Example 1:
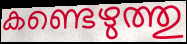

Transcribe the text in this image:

കണ്ടെഴുത്തു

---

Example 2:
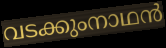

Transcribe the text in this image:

വടക്കുംനാഥൻ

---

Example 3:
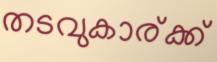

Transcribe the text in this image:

തടവുകാര്ക്ക്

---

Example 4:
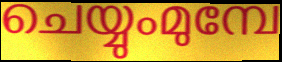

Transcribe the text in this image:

ചെയ്യുംമുമ്പേ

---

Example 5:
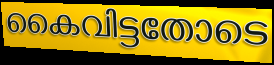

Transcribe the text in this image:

കൈവിട്ടതോടെ